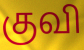
குவி